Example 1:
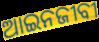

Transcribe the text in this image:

ଆଇନଜୀବୀ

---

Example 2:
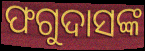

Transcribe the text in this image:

ଫଗୁଦାସଙ୍କ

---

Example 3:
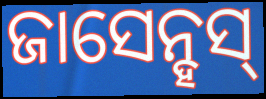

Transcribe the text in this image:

ଜାସେନ୍ହସ୍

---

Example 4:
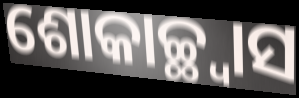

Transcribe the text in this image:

ଶୋକାଚ୍ଛ୍ୱାସ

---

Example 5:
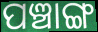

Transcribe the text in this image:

ପଞ୍ଚାଙ୍ଗ